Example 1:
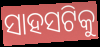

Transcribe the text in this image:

ସାହସଟିକୁ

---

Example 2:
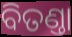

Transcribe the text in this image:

ବିତଣ୍ତା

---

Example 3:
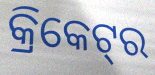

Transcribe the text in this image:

କ୍ରିକେଟ୍‌ର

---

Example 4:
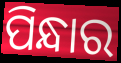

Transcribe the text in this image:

ପିନ୍ଧାର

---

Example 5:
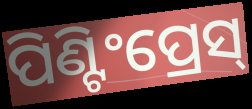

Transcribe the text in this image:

ପିଣ୍ଟିଂପ୍ରେସ୍